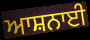
ਆਸ਼ਨਾਈ